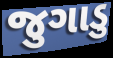
જુગાડુ